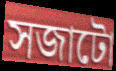
সজাটো